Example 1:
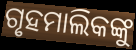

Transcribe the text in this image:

ଗୃହମାଲିକଙ୍କୁ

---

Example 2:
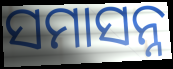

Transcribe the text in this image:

ସମାସନ୍ନ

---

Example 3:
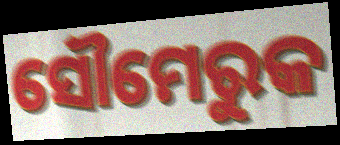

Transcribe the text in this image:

ସୌମେରୁକ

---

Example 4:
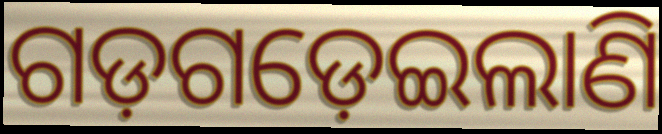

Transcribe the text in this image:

ଗଡ଼ଗଡ଼େଇଲାଣି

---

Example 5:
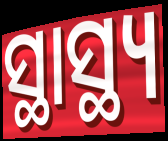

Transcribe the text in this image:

ସ୍ଥାସ୍ଥ୍ୟ